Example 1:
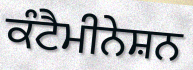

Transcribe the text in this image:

ਕੰਟੈਮੀਨੇਸ਼ਨ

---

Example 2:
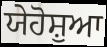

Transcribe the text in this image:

ਯੇਹੋਸ਼ੁਆ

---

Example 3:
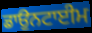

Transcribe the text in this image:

ਡਾਉਨਟਾਈਮ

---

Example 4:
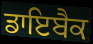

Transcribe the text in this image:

ਡਾਇਬੈਕ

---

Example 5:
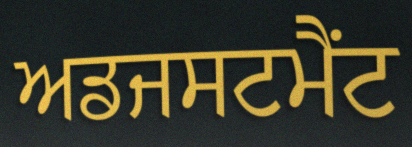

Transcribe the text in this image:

ਅਡਜਸਟਮੈਂਟ